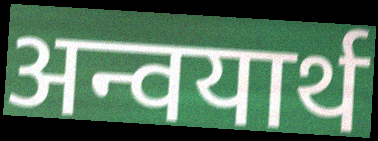
अन्वयार्थ